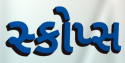
સ્કોપ્સ